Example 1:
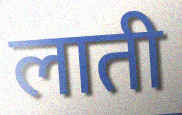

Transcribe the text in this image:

लाती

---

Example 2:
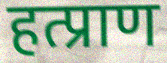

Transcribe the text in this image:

हत्प्राण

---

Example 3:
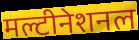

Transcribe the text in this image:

मल्टीनेशनल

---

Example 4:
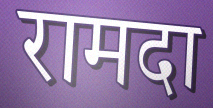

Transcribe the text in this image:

रामदा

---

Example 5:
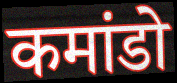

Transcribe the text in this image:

कमांडो